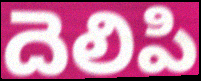
దెలిపి